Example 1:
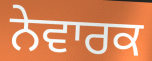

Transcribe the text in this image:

ਨੇਵਾਰਕ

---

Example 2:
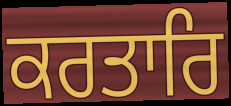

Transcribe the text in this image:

ਕਰਤਾਰਿ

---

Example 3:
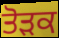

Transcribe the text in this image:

ਤੋੜਕ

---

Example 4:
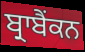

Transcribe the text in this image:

ਬ੍ਰਾਬੈਂਕਨ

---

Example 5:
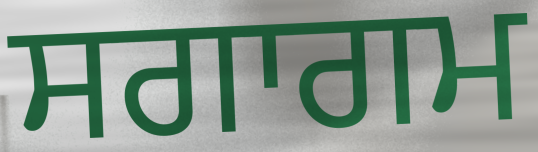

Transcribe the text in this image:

ਸਗਾਗਮ